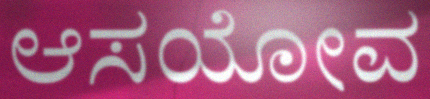
ಆಸಯೋವ